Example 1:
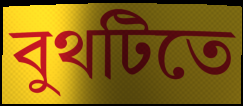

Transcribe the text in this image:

বুথটিতে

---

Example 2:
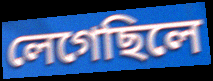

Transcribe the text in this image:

লেগেছিলে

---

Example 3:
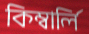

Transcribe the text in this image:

কিম্বার্লি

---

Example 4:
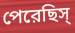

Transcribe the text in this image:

পেরেছিস্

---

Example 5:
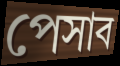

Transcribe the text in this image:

পেসাব